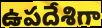
ఉపదేశిగా